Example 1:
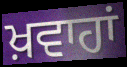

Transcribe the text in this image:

ਖ਼ਵਾਹਾਂ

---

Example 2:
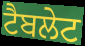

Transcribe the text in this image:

ਟੈਬਲੇਟ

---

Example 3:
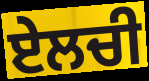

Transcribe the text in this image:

ਏਲਚੀ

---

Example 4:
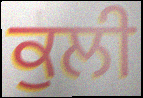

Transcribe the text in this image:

ਕੁਲੀ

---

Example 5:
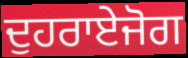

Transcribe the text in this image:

ਦੁਹਰਾਏਜੋਗ